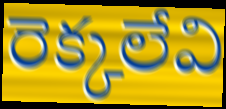
రెక్కలేవి